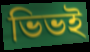
ভিভই